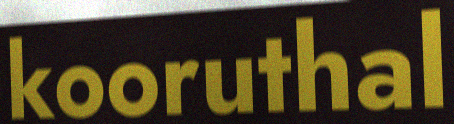
kooruthal